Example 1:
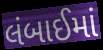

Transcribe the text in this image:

લંબાઈમાં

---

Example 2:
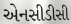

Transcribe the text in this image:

એનસીડીસી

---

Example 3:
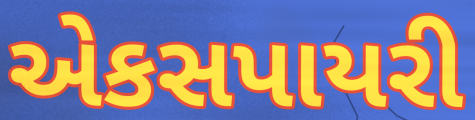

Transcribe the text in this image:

એકસપાયરી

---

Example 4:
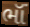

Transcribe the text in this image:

ભૉં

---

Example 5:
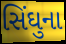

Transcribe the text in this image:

સિંઘુના